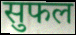
सुफल